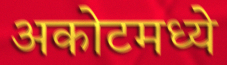
अकोटमध्ये